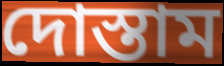
দোস্তাম